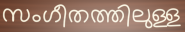
സംഗീതത്തിലുള്ള